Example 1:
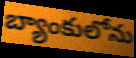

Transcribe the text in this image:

బ్యాంకులోను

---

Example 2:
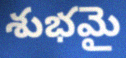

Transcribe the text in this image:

శుభమై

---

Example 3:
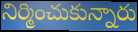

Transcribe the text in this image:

నిర్మించుకున్నారు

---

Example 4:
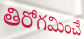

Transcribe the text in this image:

తిరోగమించే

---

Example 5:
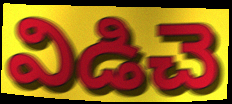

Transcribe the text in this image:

విడిచె